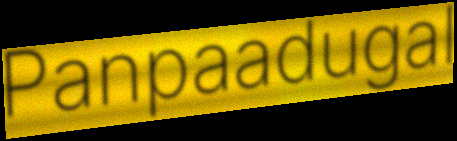
Panpaadugal